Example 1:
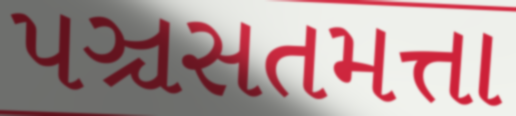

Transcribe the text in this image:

પઞ્ચસતમત્તા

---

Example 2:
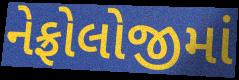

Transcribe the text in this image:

નેફ્રોલોજીમાં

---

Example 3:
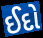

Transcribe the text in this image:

ઈદો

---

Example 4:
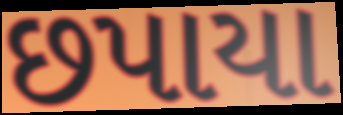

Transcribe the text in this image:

છપાયા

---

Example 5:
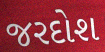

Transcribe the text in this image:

જરદોશ